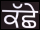
ਕੱਛੇ